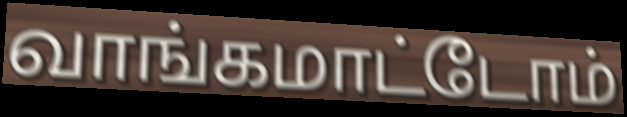
வாங்கமாட்டோம்